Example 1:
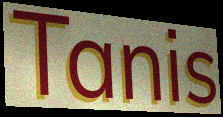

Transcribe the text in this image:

Tanis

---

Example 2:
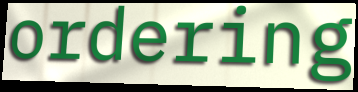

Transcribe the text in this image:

ordering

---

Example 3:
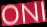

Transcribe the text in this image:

ONI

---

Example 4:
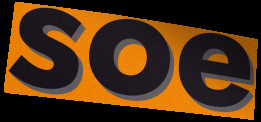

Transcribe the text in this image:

soe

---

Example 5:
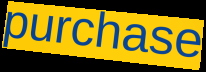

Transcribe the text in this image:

purchase